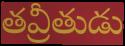
తవ్రీతుడు